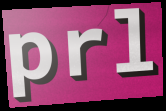
prl